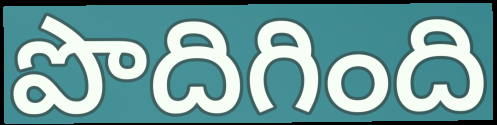
పొదిగింది